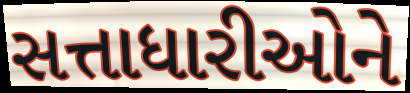
સત્તાધારીઓને